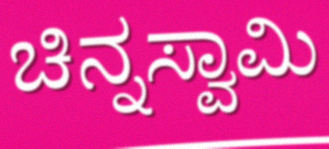
ಚಿನ್ನಸ್ವಾಮಿ